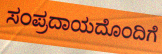
ಸಂಪ್ರದಾಯದೊಂದಿಗೆ